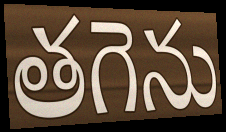
తగెను